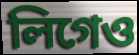
লিগেও